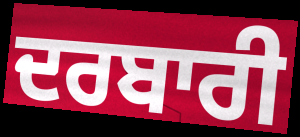
ਦਰਬਾਰੀ